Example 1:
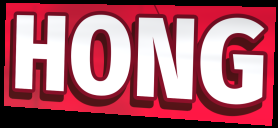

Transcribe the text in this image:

HONG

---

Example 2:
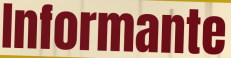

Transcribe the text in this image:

Informante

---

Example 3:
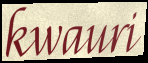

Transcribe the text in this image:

kwauri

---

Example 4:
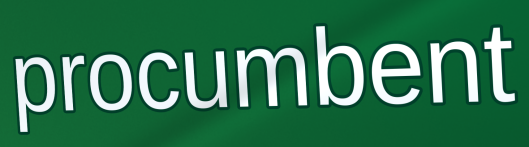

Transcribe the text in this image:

procumbent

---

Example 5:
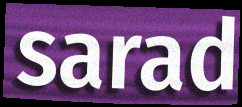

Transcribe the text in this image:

sarad